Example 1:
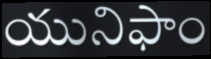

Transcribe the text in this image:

యునిఫాం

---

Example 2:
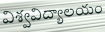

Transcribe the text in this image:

విశ్వవిద్యాలయం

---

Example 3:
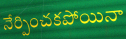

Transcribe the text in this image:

నేర్పించకపోయినా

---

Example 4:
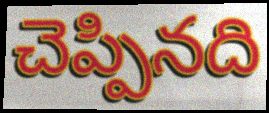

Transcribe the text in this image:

చెప్పినది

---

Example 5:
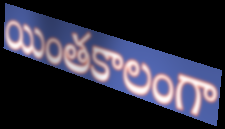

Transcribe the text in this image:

యింతకాలంగా